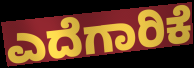
ಎದೆಗಾರಿಕೆ